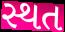
સ્થત